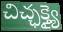
చిచ్ఛక్త్యై